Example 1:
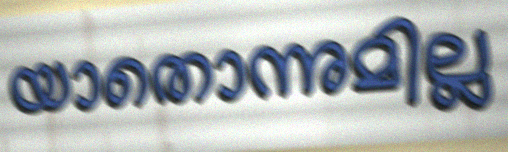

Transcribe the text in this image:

യാതൊന്നുമില്ല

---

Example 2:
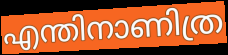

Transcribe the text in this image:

എന്തിനാണിത്ര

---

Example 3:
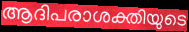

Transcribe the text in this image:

ആദിപരാശക്തിയുടെ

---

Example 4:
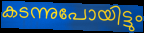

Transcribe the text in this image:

കടന്നുപോയിട്ടും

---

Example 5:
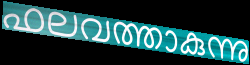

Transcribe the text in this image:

ഫലവത്താകുന്നു